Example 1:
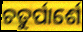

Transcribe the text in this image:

ଚତୁର୍ପାର୍ଶେ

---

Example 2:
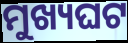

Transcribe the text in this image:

ମୁଖ୍ୟଘଟ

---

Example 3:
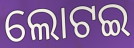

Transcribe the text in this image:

ଲୋଟଇ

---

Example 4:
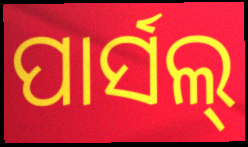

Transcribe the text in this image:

ପାର୍ସଲ୍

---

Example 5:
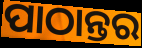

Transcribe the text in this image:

ପାଠାନ୍ତର